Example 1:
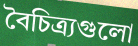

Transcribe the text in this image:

বৈচিত্র্যগুলো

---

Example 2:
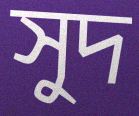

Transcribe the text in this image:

সুদ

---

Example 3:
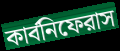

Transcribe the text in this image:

কার্বনিফেরাস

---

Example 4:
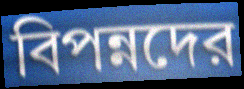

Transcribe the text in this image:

বিপন্নদের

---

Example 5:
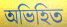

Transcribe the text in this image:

অভিহিত